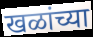
खळांच्या